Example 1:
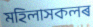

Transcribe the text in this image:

মহিলাসকলৰ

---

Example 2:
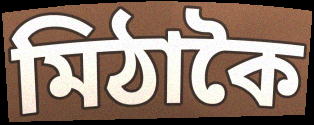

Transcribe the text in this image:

মিঠাকৈ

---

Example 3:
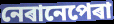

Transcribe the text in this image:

নেৰানেপেৰা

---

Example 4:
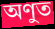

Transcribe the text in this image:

অণুত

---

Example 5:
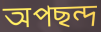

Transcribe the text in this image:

অপছন্দ